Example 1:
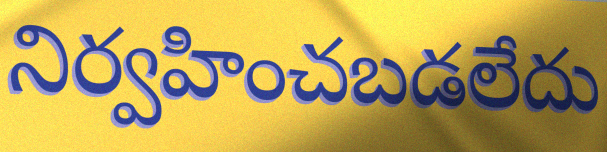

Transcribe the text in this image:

నిర్వహించబడలేదు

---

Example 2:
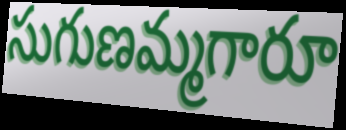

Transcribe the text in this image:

సుగుణమ్మగారూ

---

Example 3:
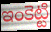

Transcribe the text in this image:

ఇంకెట్టి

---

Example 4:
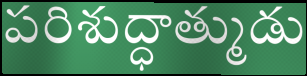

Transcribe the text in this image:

పరిశుద్ధాత్ముడు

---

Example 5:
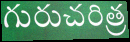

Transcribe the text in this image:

గురుచరిత్ర